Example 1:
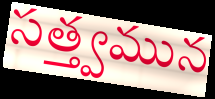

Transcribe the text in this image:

సత్త్వమున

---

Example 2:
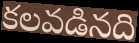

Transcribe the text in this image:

కలవడినది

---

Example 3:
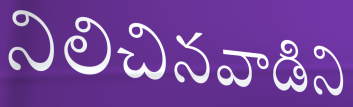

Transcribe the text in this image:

నిలిచినవాడిని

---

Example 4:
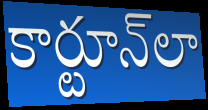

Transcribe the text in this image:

కార్టూన్‌లా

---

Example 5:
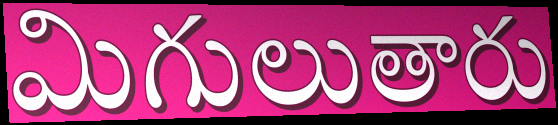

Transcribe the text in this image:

మిగులుతారు